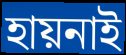
হায়নাই